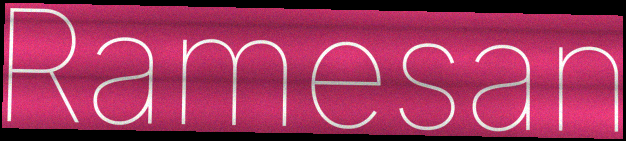
Ramesan